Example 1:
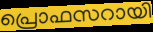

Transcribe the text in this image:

പ്രൊഫസറായി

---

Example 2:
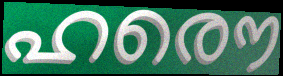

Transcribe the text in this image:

ഹരൌ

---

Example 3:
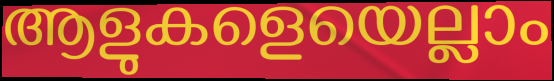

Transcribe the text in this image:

ആളുകളെയെല്ലാം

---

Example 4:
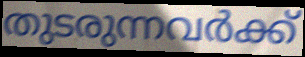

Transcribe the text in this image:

തുടരുന്നവർക്ക്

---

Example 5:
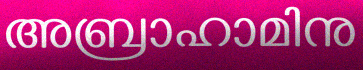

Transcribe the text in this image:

അബ്രാഹാമിനു